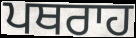
ਪਥਰਾਹ